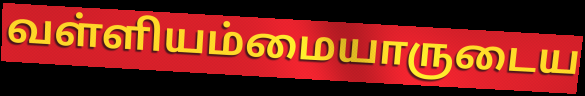
வள்ளியம்மையாருடைய